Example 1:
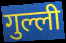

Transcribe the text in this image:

गुल्ली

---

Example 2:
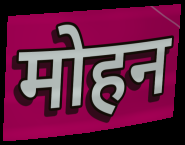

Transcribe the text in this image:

मोहन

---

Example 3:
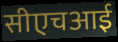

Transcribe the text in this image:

सीएचआई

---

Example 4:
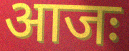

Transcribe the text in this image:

आजः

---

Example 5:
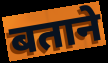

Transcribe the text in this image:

बताने